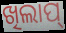
ଖିଲାପ୍